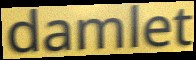
damlet